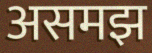
असमझ